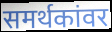
समर्थकांवर